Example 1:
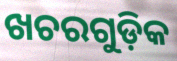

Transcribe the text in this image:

ଖଚରଗୁଡ଼ିକ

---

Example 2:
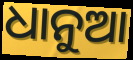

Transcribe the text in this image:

ଧାନୁଆ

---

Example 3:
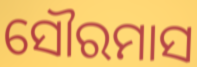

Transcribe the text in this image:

ସୌରମାସ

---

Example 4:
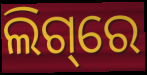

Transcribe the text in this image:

ଲିଗ୍‌ରେ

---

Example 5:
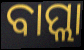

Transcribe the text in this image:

ବାପ୍ଲା